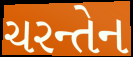
ચરન્તેન